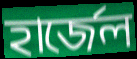
হার্জেল